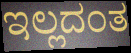
ಇಲ್ಲದಂತ